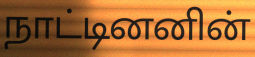
நாட்டினனின்